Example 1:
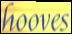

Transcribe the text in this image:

hooves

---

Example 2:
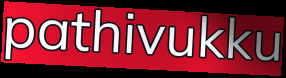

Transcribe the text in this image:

pathivukku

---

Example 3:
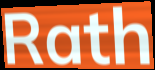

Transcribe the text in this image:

Rath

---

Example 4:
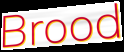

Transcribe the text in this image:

Brood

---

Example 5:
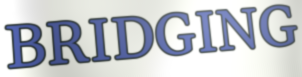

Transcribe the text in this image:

BRIDGING